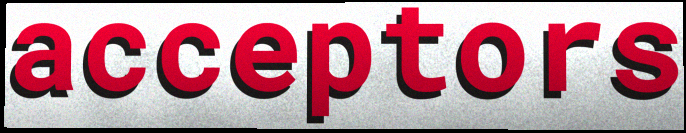
acceptors